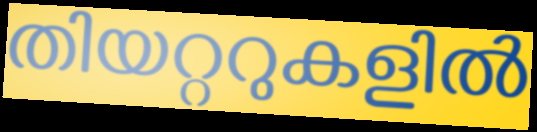
തിയറ്ററുകളിൽ